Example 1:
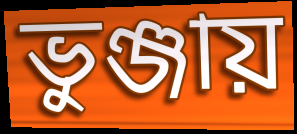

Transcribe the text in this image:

ভুঞ্জায়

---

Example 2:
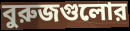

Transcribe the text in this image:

বুরুজগুলোর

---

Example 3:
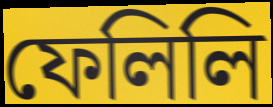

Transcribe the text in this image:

ফেলিলি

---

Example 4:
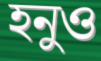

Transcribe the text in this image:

হনুও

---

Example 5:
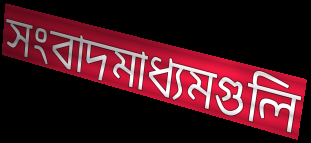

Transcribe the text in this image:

সংবাদমাধ্যমগুলি